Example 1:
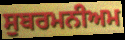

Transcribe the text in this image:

ਸੁਬਰਮਨੀਅਮ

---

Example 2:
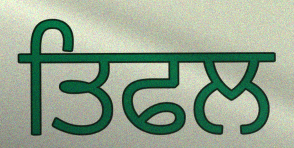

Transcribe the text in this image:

ਤਿਫਲ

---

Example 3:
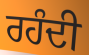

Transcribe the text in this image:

ਰਹੰਦੀ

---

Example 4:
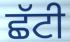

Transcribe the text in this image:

ਛੱਟੀ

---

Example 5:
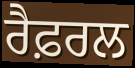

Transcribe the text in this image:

ਰੈਫ਼ਰਲ